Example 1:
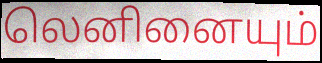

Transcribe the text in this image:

லெனினையும்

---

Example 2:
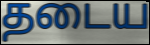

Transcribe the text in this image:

தடைய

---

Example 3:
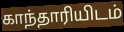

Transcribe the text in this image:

காந்தாரியிடம்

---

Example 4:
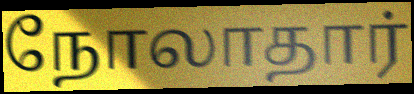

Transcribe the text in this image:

நோலாதார்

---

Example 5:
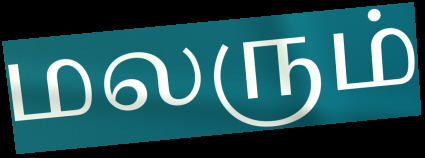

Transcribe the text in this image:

மலரும்